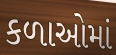
કળાઓમાં